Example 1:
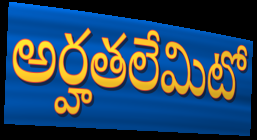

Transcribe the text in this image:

అర్హతలేమిటో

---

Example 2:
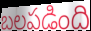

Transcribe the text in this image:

బలపడింది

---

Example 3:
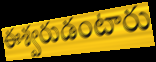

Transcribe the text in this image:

ఈశ్వరుడంటారు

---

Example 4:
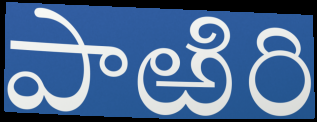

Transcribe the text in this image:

పాఱిరి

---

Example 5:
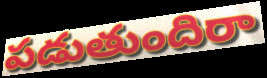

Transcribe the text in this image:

పడుతుందిరా